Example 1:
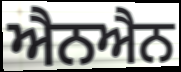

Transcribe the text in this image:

ਐਨਐਨ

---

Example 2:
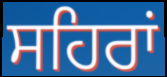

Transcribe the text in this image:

ਸਹਿਰਾਂ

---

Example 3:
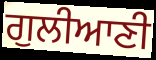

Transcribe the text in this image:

ਗੁਲੀਆਣੀ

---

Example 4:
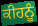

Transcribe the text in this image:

ਕੀਹਨੂੰ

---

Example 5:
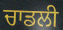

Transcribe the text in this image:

ਚਾਡਲੀ